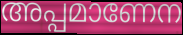
അപ്പമാണേന